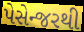
પેસેન્જરથી